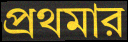
প্রথমার